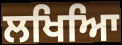
ਲਖਿਆਿ